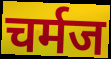
चर्मज